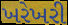
ખરેખરી